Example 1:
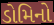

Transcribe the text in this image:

ડોમિનો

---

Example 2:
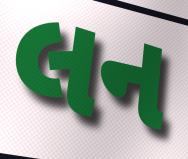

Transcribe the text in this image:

લન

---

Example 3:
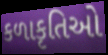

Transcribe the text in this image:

કળાકૃતિઓ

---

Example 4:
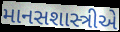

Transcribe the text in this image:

માનસશાસ્ત્રીએ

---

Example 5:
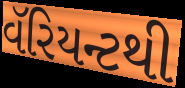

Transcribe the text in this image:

વૅરિયન્ટથી